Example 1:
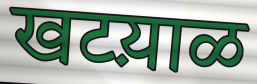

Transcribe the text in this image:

खटय़ाळ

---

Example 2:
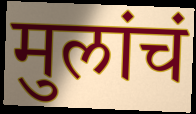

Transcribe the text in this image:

मुलांचं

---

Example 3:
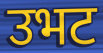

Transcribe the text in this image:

उभट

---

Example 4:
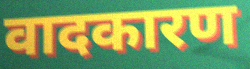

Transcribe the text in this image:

वादकारण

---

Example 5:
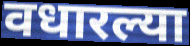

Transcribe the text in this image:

वधारल्या